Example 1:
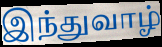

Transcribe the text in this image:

இந்துவாழ்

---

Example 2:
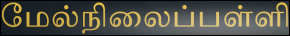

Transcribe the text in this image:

மேல்நிலைப்பள்ளி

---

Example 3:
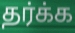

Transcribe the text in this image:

தர்க்க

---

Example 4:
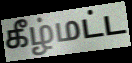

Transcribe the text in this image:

கீழ்மட்ட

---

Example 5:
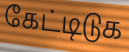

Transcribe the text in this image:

கேட்டிடுக